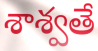
శాశ్వతే